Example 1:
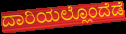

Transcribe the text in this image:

ದಾರಿಯಲ್ಲೊಂದೆಡೆ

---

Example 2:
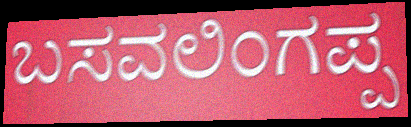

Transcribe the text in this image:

ಬಸವಲಿಂಗಪ್ಪ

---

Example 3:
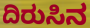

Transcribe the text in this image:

ದಿರುಸಿನ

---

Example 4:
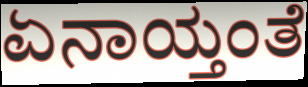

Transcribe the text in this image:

ಏನಾಯ್ತಂತೆ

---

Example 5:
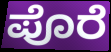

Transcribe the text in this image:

ಪೊರೆ